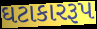
ઘટાકારરૂપ